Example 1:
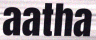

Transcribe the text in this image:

aatha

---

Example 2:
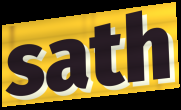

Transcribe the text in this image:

sath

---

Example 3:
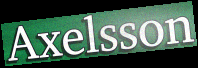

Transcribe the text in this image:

Axelsson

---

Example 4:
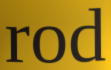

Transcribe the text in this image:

rod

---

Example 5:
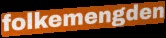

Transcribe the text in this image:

folkemengden